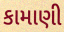
કામાણી